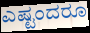
ಎಷ್ಟಂದರೂ